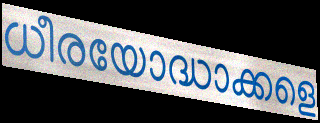
ധീരയോദ്ധാക്കളെ